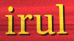
irul